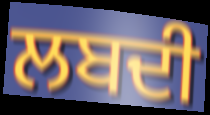
ਲਬਦੀ